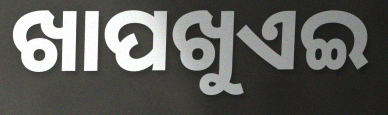
ଖାପଖୁଏଇ